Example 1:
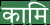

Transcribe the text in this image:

कामि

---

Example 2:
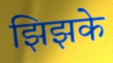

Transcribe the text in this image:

झिझके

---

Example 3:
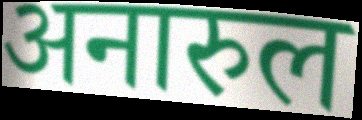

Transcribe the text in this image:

अनारुल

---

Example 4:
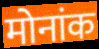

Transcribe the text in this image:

मोनांक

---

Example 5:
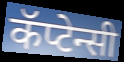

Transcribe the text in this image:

कॅप्टेन्सी